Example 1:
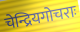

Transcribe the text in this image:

चेन्द्रियगोचराः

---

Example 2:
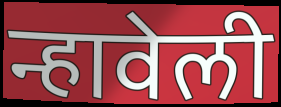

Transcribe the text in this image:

न्हावेली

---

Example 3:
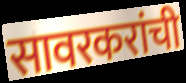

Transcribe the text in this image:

सावरकरांची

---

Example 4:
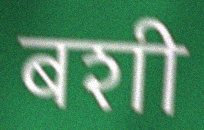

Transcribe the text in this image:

बशी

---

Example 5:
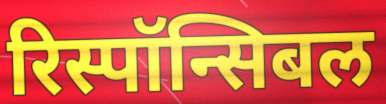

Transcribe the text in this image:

रिस्पॉन्सिबल